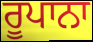
ਰੂਪਾਨਾ